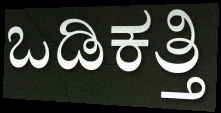
ಒಡಿಕತ್ತಿ